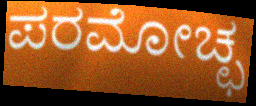
ಪರಮೋಚ್ಛ